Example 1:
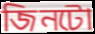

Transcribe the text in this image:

জিনটো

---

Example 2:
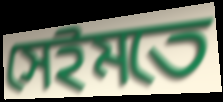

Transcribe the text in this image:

সেইমতে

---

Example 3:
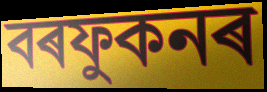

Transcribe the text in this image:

বৰফুকনৰ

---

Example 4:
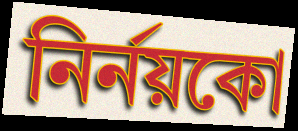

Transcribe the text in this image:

নিৰ্নয়কো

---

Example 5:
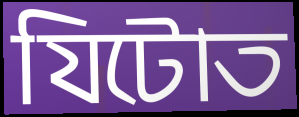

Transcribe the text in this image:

যিটোত